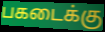
பகடைக்கு